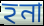
হনা